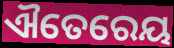
ଐତେରେୟ